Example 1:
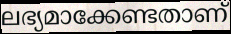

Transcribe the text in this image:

ലഭ്യമാക്കേണ്ടതാണ്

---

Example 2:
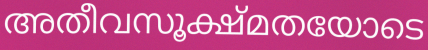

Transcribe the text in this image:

അതീവസൂക്ഷ്മതയോടെ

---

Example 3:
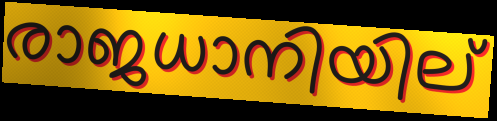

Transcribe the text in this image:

രാജധാനിയില്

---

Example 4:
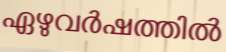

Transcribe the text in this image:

ഏഴുവർഷത്തിൽ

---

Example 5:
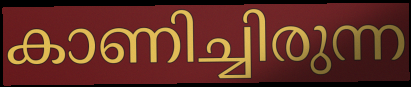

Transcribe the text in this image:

കാണിച്ചിരുന്ന